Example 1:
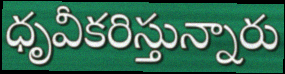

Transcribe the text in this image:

ధృవీకరిస్తున్నారు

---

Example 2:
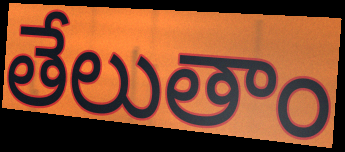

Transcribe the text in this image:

తేలుతాం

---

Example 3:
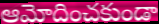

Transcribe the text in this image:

ఆమోదించకుండా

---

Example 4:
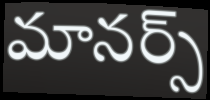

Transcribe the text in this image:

మానర్స్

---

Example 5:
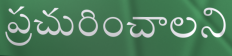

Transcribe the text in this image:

ప్రచురించాలని